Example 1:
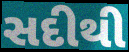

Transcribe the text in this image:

સદીથી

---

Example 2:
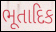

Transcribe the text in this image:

ભૂતાદિક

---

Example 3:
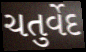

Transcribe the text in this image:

ચતુર્વેદ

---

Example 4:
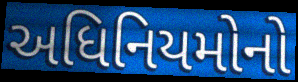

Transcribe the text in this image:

અધિનિયમોનો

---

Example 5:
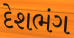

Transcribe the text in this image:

દેશભંગ